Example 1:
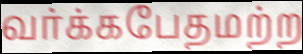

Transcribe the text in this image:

வர்க்கபேதமற்ற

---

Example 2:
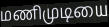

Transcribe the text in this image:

மணிமுடியை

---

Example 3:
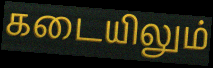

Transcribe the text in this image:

கடையிலும்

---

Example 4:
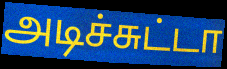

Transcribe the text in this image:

அடிச்சுட்டா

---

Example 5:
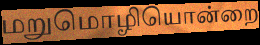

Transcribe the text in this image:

மறுமொழியொன்றை